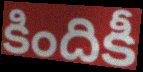
కిందికీ